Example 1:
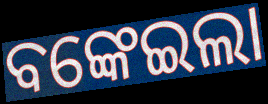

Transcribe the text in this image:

ବଙ୍କେଇଲା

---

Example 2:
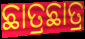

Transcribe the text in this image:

ଛାତ୍ରଛାତ୍ର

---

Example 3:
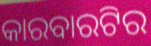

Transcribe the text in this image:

କାରବାରଟିର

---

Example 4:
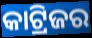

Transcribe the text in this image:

କାଟ୍ରିଜର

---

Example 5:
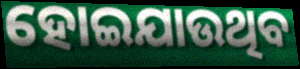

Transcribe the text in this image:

ହୋଇଯାଉଥିବ